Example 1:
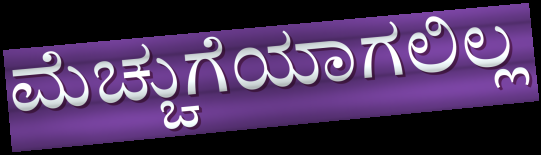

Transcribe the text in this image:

ಮೆಚ್ಚುಗೆಯಾಗಲಿಲ್ಲ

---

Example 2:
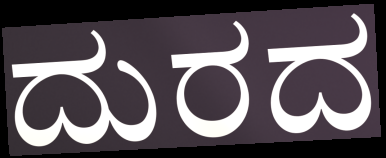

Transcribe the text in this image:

ದುರದ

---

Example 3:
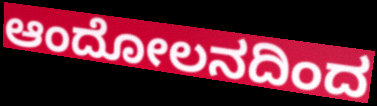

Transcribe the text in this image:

ಆಂದೋಲನದಿಂದ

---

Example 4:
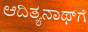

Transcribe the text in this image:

ಆದಿತ್ಯನಾಥ್‌ಗೆ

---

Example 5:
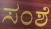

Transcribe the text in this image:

ಸಂಶೆ